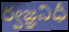
ర్వజ్ఞనిధీ